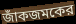
জাঁকজমকের